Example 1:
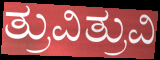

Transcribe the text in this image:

ತ್ರುವಿತ್ರುವಿ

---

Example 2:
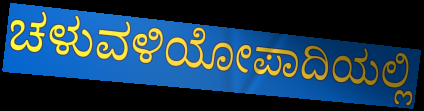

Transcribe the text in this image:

ಚಳುವಳಿಯೋಪಾದಿಯಲ್ಲಿ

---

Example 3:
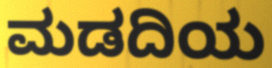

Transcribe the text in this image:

ಮಡದಿಯ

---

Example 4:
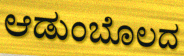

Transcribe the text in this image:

ಆಡುಂಬೊಲದ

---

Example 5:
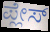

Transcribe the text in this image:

ಪ್ಲೇಸ್